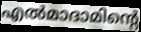
എൽമാദാമിന്റെ